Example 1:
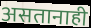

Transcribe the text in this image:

असतानाही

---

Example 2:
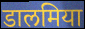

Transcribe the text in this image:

डालमिया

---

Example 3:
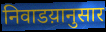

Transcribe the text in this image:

निवाडय़ानुसार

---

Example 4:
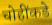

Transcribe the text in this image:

चोहींकडे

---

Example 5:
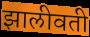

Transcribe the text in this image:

झालीवती